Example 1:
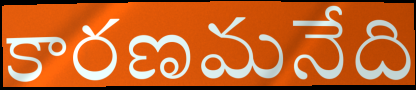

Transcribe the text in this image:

కారణమనేది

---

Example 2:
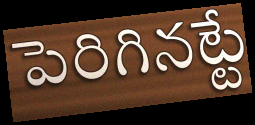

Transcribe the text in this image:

పెరిగినట్టే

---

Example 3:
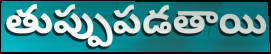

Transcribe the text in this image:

తుప్పుపడతాయి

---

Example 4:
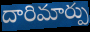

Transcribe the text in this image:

దారిమార్పు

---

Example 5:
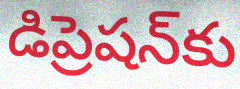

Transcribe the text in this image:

డిప్రెషన్‌కు